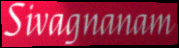
Sivagnanam